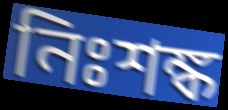
নিঃশঙ্ক